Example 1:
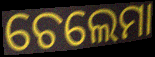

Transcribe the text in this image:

ଚେଲେମା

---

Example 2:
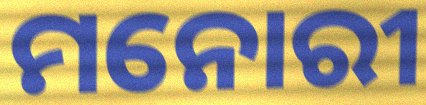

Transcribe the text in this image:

ମନୋରୀ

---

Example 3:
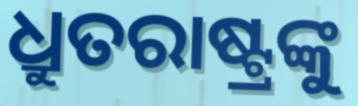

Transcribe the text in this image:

ଧ୍ରୁତରାଷ୍ଟ୍ରଙ୍କୁ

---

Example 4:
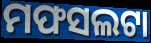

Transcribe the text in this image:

ମଫସଲଟା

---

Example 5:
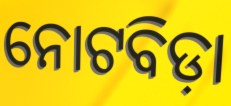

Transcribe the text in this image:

ନୋଟବିଡ଼ା